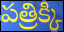
పత్రిక్కి